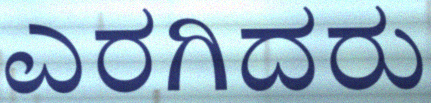
ಎರಗಿದರು